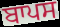
ਬਾਪਸ